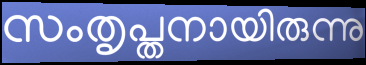
സംതൃപ്തനായിരുന്നു